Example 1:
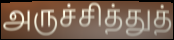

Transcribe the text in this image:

அருச்சித்துத்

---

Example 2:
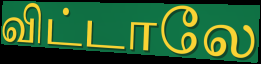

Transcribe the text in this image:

விட்டாலே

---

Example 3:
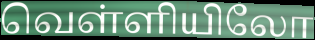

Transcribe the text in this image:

வெள்ளியிலோ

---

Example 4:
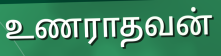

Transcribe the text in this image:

உணராதவன்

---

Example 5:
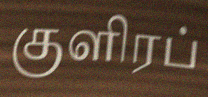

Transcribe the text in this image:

குளிரப்